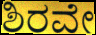
ಶಿರವೇ